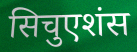
सिचुएशंस